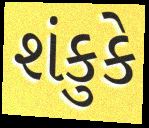
શંકુકે